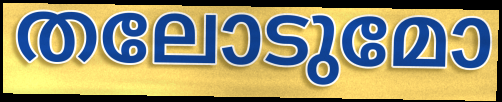
തലോടുമോ